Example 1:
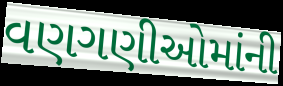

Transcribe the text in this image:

વણગણીઓમાંની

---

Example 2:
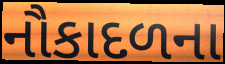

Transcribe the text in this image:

નૌકાદળના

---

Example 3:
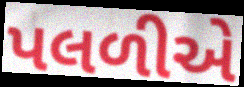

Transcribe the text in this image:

પલળીએ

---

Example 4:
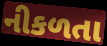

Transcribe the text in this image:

નીકળતા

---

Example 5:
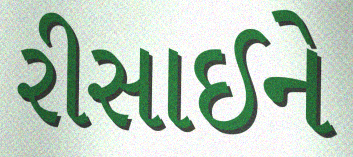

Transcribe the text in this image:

રીસાઈને